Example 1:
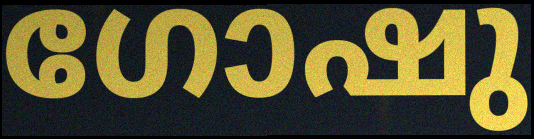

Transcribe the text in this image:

ഗോഷു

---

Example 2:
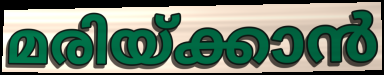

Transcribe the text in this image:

മരിയ്ക്കാൻ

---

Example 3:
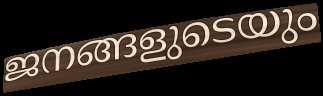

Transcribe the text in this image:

ജനങ്ങളുടെയും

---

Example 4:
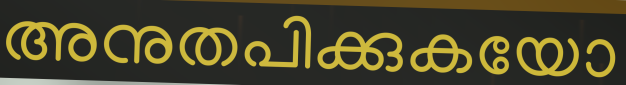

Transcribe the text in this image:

അനുതപിക്കുകയോ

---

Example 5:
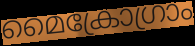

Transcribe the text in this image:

മൈക്രോഗ്രാം